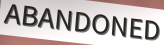
ABANDONED